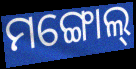
ମଙ୍ଗୋଲ୍